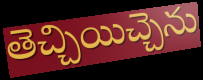
తెచ్చియిచ్చెను